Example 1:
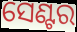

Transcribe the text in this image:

ସେଣ୍ଟର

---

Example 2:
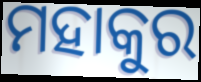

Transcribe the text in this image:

ମହାକୁର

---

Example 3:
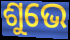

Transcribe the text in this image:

ଶୁଭେ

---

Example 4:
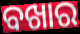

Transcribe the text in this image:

ବଖାର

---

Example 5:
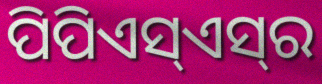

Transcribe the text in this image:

ପିପିଏସ୍ଏସ୍‌ର